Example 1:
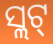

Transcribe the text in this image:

ସ୍ଲଟ୍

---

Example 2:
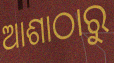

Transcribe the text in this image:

ଆଶାଠାରୁ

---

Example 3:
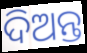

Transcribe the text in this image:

ଦିଅନ୍ତ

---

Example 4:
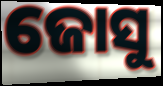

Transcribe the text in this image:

ଜୋସୁ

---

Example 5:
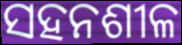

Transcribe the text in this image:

ସହନଶୀଳ